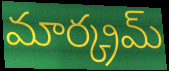
మార్క్రమ్